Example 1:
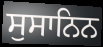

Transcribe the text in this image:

ਸੁਸਾਨਿਨ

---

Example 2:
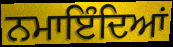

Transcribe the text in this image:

ਨਮਾਇੰਦਿਆਂ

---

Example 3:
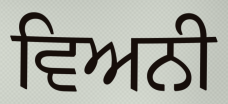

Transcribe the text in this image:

ਵਿਅਨੀ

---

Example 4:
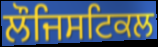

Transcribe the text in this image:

ਲੌਜਿਸਟਿਕਲ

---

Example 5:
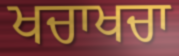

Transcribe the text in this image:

ਖਚਾਖਚਾ